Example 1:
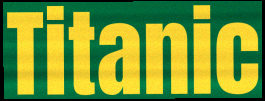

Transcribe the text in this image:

Titanic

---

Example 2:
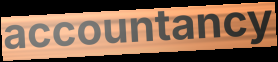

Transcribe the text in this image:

accountancy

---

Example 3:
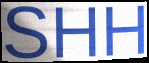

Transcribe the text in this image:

SHH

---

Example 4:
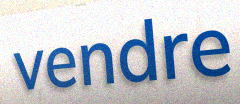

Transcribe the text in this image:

vendre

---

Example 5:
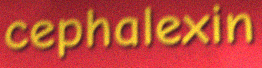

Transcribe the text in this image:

cephalexin